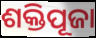
ଶକ୍ତିପୂଜା